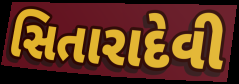
સિતારાદેવી